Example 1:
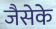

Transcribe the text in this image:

जैसेके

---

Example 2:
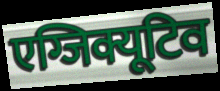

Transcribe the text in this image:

एग्जिक्यूटिव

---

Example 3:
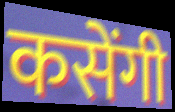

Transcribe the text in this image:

कसेंगी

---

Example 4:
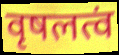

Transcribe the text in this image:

वृषलत्वं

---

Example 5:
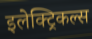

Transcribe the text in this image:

इलेक्ट्रिकल्स